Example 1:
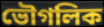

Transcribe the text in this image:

ভৌগলিক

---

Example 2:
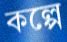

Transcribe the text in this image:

কল্পে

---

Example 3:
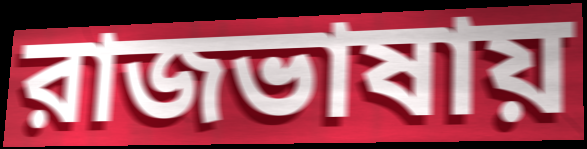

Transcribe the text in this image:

রাজভাষায়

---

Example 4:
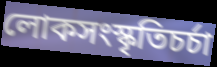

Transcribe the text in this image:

লোকসংস্কৃতিচর্চা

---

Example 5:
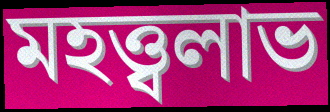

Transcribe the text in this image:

মহত্ত্বলাভ